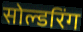
सोल्डरिंग